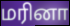
மரினா